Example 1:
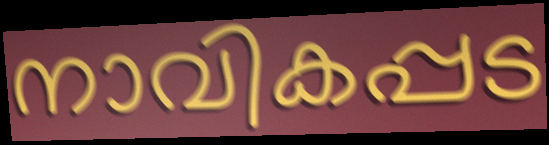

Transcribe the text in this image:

നാവികപ്പട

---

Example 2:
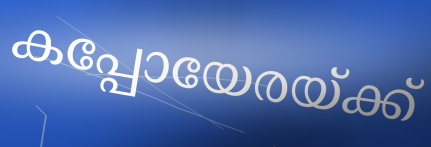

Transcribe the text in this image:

കപ്പോയേരയ്ക്ക്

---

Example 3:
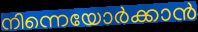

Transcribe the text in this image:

നിന്നെയോർക്കാൻ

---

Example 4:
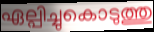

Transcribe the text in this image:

ഏല്പിച്ചുകൊടുത്തു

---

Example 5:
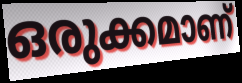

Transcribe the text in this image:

ഒരുക്കമാണ്